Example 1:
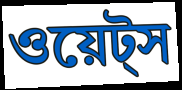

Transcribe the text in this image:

ওয়েট্স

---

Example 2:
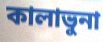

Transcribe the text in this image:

কালাভুনা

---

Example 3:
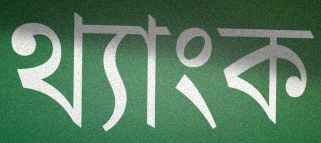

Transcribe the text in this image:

থ্যাংক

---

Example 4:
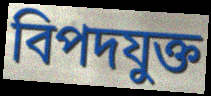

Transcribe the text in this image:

বিপদযুক্ত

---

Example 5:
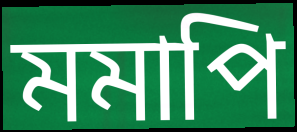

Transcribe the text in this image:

মমাপি